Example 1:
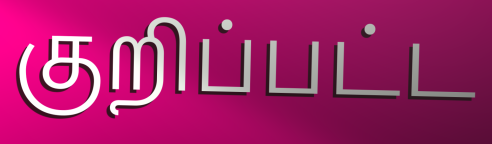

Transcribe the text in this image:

குறிப்பட்ட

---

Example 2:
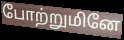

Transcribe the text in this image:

போற்றுமினே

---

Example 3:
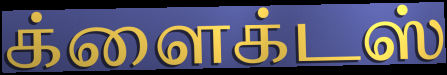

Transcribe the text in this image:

க்ளைக்டஸ்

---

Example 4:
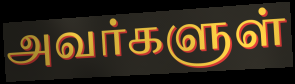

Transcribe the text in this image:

அவர்களுள்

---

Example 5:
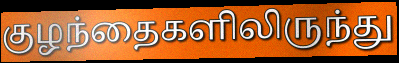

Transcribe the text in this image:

குழந்தைகளிலிருந்து